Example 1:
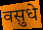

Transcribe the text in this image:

वसुधे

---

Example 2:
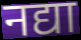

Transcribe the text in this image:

नद्या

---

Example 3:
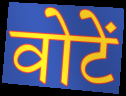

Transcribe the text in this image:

वोटें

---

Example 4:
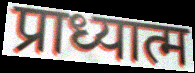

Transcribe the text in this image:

प्राध्यात्म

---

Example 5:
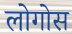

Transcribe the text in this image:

लोगोस